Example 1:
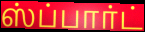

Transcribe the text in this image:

ஸ்ப்பார்ட்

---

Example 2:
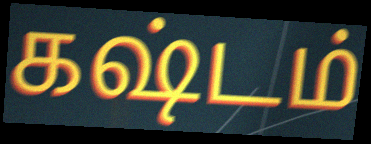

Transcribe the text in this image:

கஷ்டம்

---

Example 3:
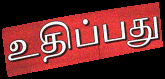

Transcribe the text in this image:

உதிப்பது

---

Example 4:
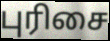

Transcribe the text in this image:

புரிசை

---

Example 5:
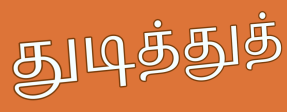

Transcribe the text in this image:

துடித்துத்